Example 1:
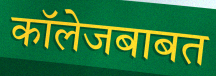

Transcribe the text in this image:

कॉलेजबाबत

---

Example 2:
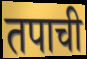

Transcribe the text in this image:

तपाची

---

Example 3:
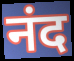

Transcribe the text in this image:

नंद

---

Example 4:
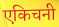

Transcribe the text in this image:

एकिचनी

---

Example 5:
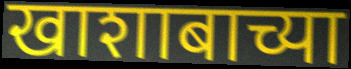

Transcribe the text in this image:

खाशाबाच्या